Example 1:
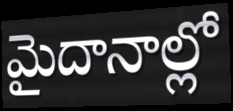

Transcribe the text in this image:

మైదానాల్లో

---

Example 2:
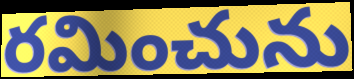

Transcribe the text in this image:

రమించును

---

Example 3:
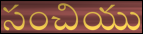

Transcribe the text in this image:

సంచియు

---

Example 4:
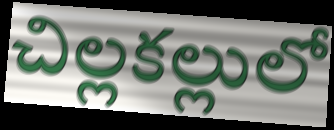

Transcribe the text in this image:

చిల్లకల్లులో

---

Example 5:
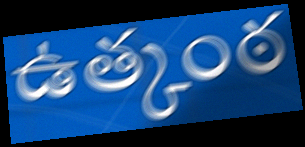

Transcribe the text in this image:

ఉత్కంఠ